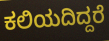
ಕಲಿಯದಿದ್ದರೆ